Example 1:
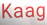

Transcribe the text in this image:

Kaag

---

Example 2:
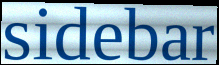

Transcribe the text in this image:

sidebar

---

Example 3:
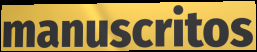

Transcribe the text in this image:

manuscritos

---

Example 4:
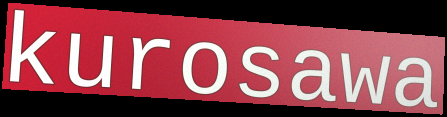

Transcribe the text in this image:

kurosawa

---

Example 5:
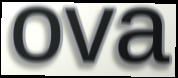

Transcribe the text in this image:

ova